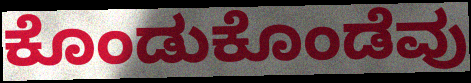
ಕೊಂಡುಕೊಂಡೆವು